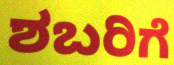
ಶಬರಿಗೆ